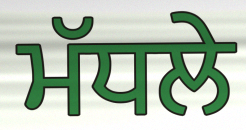
ਮੱਧਲੇ